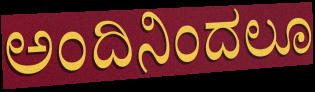
ಅಂದಿನಿಂದಲೂ